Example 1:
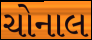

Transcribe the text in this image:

ચોનાલ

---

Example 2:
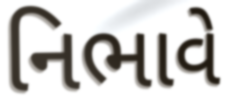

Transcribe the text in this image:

નિભાવે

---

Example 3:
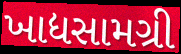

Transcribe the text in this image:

ખાદ્યસામગ્રી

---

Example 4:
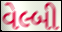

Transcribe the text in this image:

વેલ્બી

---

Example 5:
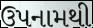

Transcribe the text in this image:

ઉપનામથી